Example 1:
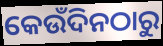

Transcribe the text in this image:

କେଉଁଦିନଠାରୁ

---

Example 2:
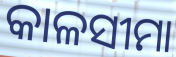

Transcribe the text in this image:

କାଳସୀମା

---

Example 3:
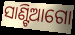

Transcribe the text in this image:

ସାଣ୍ଟିଆଗୋ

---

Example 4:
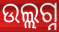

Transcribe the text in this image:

ଉଲ୍ଲଗ୍ନ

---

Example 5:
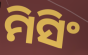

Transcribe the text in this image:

ମିସିଂ